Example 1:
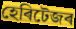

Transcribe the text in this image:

হেৰিটেজৰ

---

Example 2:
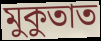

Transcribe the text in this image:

মুকুতাত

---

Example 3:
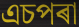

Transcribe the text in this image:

এচপৰা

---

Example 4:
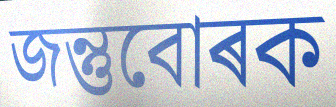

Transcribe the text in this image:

জন্তুবোৰক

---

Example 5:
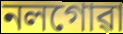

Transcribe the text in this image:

নলগোৱা